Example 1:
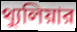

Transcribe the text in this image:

থ্যুলিয়ার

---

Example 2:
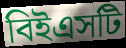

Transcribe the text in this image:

বিইএসটি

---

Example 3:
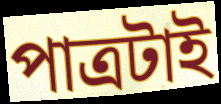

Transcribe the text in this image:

পাত্রটাই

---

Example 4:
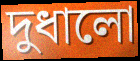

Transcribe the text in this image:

দুধালো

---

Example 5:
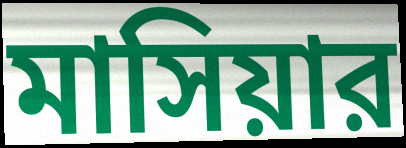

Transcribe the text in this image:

মাসিয়ার